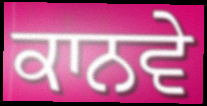
ਕਾਨਵੇ